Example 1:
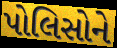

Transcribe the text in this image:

પોલિસોને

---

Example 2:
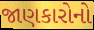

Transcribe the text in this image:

જાણકારોનો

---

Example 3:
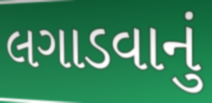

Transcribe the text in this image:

લગાડવાનું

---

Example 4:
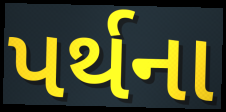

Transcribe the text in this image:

પર્થના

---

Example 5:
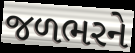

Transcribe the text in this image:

જળભરને